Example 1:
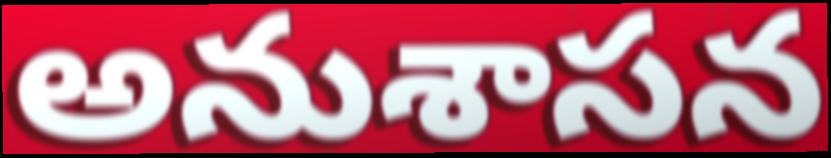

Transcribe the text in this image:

అనుశాసన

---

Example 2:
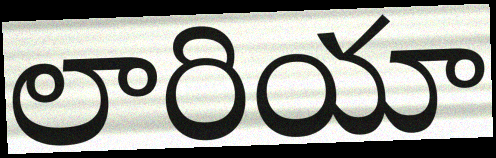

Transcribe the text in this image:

లారియా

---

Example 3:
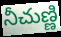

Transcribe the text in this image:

నీచుణ్ణి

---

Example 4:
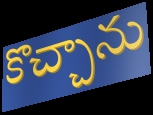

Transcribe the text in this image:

కొచ్చాను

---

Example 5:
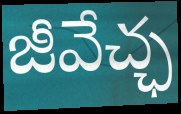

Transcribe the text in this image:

జీవేచ్ఛ